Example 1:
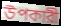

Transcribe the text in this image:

উপকারী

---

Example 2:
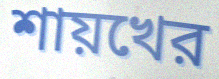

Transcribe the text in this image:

শায়খের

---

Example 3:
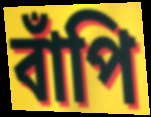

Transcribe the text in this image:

বাঁপি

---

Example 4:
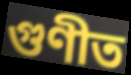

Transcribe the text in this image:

গুণীত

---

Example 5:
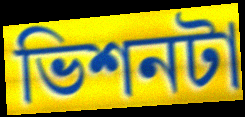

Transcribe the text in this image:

ভিশনটা